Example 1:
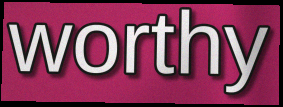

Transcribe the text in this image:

worthy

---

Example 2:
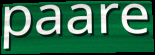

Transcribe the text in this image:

paare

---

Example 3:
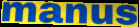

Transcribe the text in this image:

manus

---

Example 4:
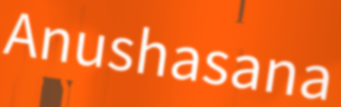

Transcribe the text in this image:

Anushasana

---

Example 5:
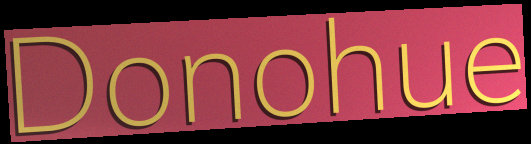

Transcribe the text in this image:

Donohue